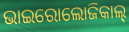
ଭାଇରୋଲୋଜିକାଲ୍